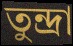
তুন্দ্রা